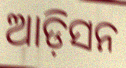
ଆଡ଼ିସନ